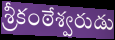
శ్రీకంఠేశ్వరుడు